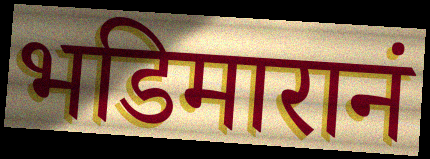
भडिमारानं